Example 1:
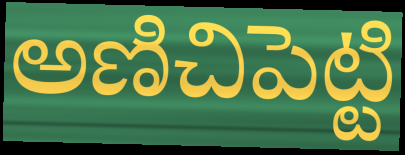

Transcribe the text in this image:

అణిచిపెట్టి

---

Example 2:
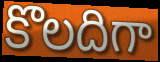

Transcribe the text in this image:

కొలదిగా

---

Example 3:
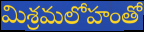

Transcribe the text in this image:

మిశ్రమలోహంతో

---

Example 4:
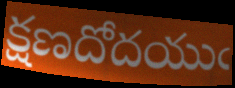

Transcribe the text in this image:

క్షణదోదయుఁ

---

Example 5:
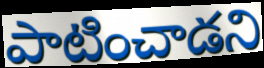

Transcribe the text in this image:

పాటించాడని